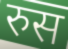
रुस